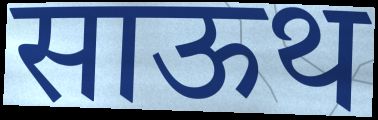
साऊथ